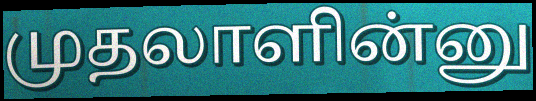
முதலாளின்னு